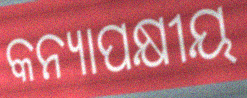
କନ୍ୟାପକ୍ଷୀୟ